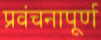
प्रवंचनापूर्ण